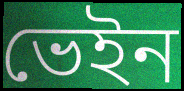
ভেইন